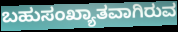
ಬಹುಸಂಖ್ಯಾತವಾಗಿರುವ